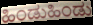
ಹಿಂಡುಹಿಂಡು